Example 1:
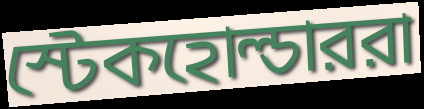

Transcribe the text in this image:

স্টেকহোল্ডাররা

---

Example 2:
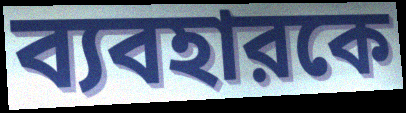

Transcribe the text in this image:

ব্যবহারকে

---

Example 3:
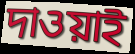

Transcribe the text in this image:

দাওয়াই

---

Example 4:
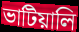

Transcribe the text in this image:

ভাটিয়ালি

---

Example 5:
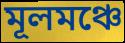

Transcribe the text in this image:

মূলমঞ্চে